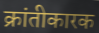
क्रांतीकारक